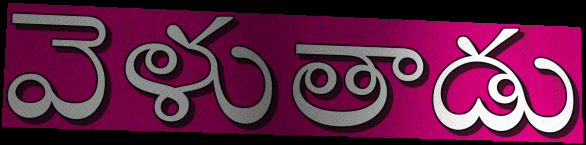
వెళుతాడు